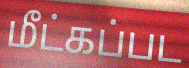
மீட்கப்பட